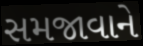
સમજાવાને